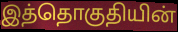
இத்தொகுதியின்